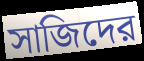
সাজিদের